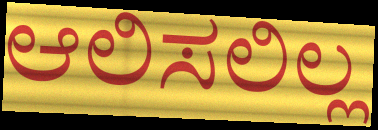
ಆಲಿಸಲಿಲ್ಲ